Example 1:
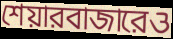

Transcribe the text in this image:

শেয়ারবাজারেও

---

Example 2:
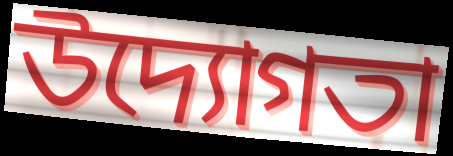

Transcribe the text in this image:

উদ্যোগতা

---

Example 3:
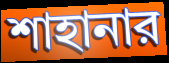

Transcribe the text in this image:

শাহানার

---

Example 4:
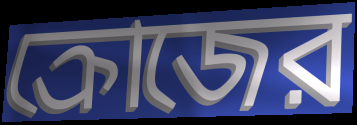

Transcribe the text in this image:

ক্রোজের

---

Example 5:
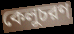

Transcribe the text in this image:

কেলুচরণ